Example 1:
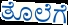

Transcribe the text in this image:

ತೊಲೆಗೆ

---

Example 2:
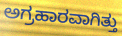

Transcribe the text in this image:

ಅಗ್ರಹಾರವಾಗಿತ್ತು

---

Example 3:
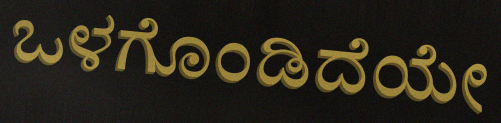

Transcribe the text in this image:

ಒಳಗೊಂಡಿದೆಯೇ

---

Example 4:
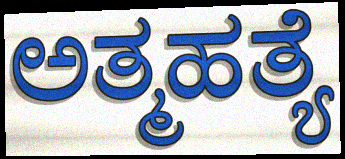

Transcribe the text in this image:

ಅತ್ಮಹತ್ಯೆ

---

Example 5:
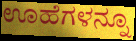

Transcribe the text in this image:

ಊಹೆಗಳನ್ನೂ